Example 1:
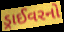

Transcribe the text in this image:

ડ્રાઈવરનો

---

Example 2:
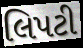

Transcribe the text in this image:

લિપટી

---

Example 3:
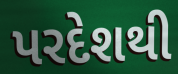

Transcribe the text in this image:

પરદેશથી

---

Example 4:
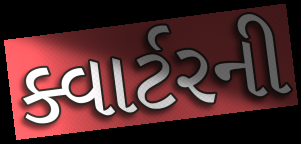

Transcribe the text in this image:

ક્વાર્ટરની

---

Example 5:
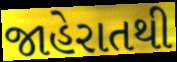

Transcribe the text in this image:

જાહેરાતથી